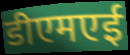
डीएमएई